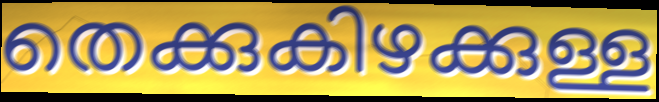
തെക്കുകിഴക്കുള്ള